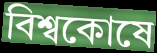
বিশ্বকোষে